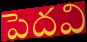
పెదవి